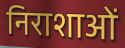
निराशाओं